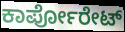
ಕಾರ್ಪೋರೇಟ್